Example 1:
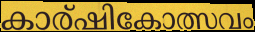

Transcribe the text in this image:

കാര്ഷികോത്സവം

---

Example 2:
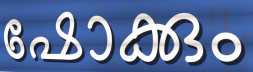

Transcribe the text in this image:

ഷോക്കും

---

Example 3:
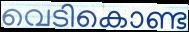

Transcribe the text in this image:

വെടികൊണ്ട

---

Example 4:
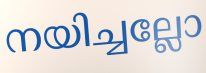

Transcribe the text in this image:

നയിച്ചല്ലോ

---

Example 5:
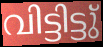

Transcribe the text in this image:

വിട്ടിട്ടു്